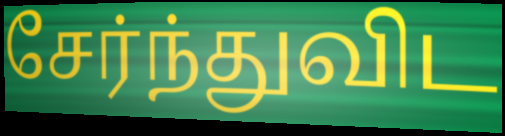
சேர்ந்துவிட